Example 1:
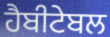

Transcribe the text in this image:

ਹੈਬੀਟੇਬਲ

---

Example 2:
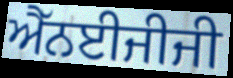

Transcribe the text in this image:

ਐੱਨਈਜੀਜੀ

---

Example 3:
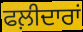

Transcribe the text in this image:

ਫਲ਼ੀਦਾਰਾਂ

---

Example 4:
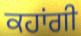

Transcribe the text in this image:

ਕਹਾਂਗੀ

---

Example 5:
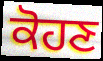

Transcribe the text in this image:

ਕੋਹਣ